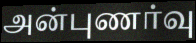
அன்புணர்வு